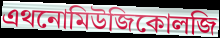
এথনোমিউজিকোলজি